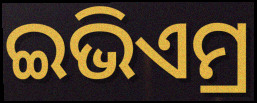
ଇଭିଏମ୍ର